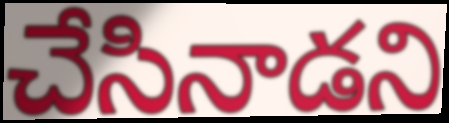
చేసినాడని